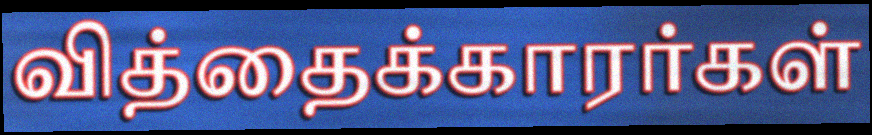
வித்தைக்காரர்கள்